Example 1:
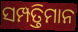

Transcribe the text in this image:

ସମ୍ପତ୍ତିମାନ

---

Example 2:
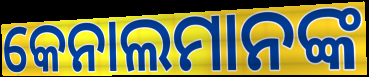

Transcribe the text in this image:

କେନାଲମାନଙ୍କ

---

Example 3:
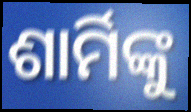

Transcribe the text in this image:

ଶାର୍ମିଙ୍କୁ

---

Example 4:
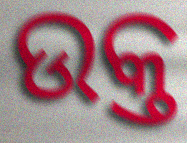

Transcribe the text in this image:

ଉକ୍ତ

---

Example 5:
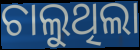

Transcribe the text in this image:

ଚାଲୁଥିଲା